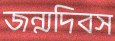
জন্মদিবস